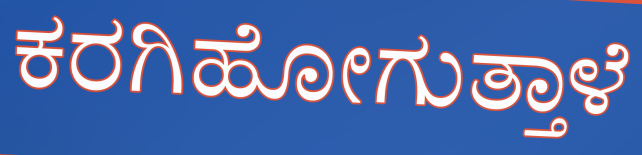
ಕರಗಿಹೋಗುತ್ತಾಳೆ